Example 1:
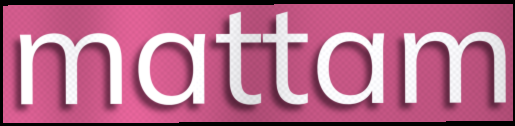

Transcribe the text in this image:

mattam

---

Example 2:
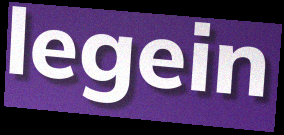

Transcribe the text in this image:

legein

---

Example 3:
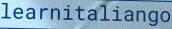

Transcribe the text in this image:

learnitaliango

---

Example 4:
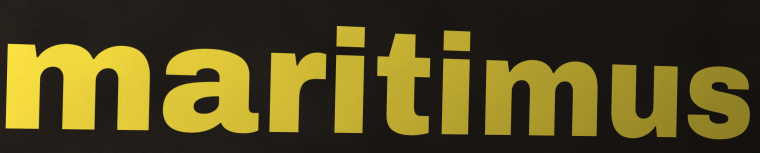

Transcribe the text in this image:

maritimus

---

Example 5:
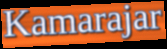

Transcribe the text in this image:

Kamarajar